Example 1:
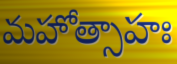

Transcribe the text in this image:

మహోత్సాహః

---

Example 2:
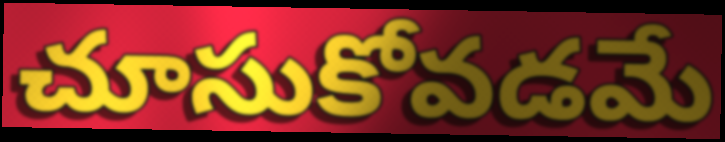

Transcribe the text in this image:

చూసుకోవడమే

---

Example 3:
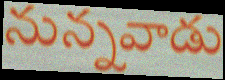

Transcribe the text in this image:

నున్నవాడు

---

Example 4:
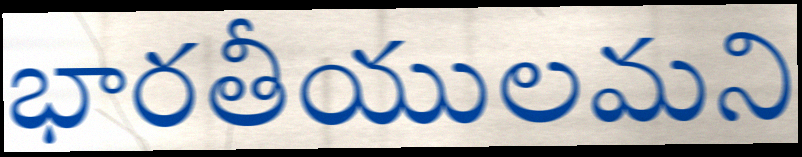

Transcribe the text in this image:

భారతీయులమని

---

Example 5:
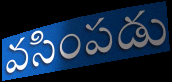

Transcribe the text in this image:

వసింపడు